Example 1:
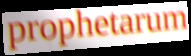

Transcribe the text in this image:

prophetarum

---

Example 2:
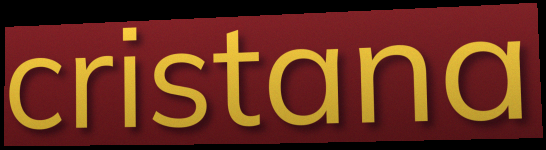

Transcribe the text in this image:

cristana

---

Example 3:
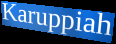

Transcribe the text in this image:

Karuppiah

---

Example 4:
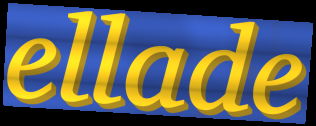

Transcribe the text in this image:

ellade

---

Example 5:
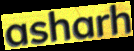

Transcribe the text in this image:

asharh